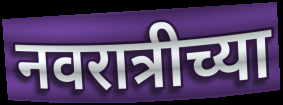
नवरात्रीच्या